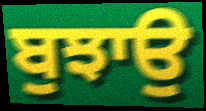
ਬੁਝਾਉ